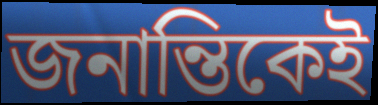
জনান্তিকেই